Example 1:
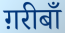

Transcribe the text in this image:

ग़रीबाँ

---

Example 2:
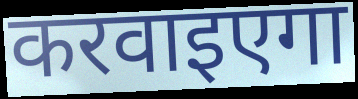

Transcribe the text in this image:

करवाइएगा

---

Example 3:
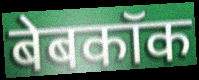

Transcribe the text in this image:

बेबकॉक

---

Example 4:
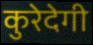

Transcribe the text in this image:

कुरेदेगी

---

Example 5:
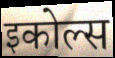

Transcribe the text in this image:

इकोल्स